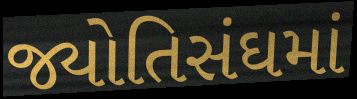
જ્યોતિસંઘમાં